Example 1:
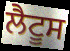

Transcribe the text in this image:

ਲੈਟੂਸ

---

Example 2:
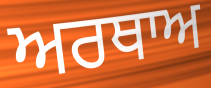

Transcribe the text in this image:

ਅਰਥਾਅ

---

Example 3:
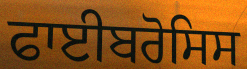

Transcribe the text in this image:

ਫਾਈਬਰੋਸਿਸ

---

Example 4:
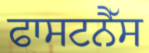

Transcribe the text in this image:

ਫਾਸਟਨੈੱਸ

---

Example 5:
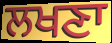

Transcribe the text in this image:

ਲਖਣਾ